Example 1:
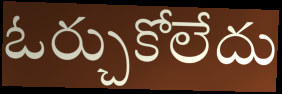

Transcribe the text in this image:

ఓర్చుకోలేదు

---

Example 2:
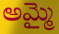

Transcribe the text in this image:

అమ్మై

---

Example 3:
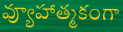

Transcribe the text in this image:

వ్యూహాత్మకంగా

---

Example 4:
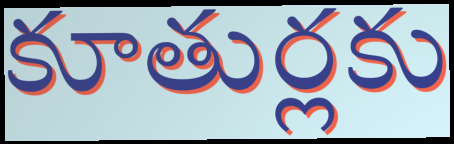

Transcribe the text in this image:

కూతుర్లకు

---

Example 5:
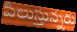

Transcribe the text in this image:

పిలుస్తున్నరు